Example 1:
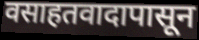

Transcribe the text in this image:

वसाहतवादापासून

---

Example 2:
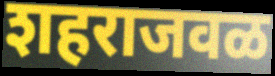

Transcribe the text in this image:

शहराजवळ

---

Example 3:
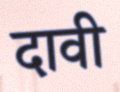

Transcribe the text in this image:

दावी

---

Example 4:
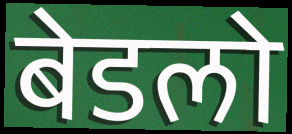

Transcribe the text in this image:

बेडलो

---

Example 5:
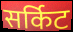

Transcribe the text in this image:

सर्किट